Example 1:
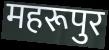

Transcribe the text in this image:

महरूपुर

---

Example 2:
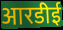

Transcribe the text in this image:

आरडीई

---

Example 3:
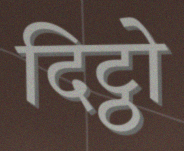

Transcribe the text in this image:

दिट्ठो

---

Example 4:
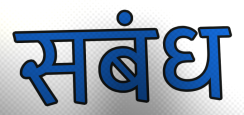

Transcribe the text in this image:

सबंध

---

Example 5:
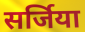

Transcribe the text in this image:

सर्जिया